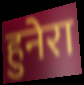
हुनेरा